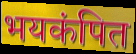
भयकंपित